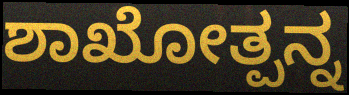
ಶಾಖೋತ್ಪನ್ನ